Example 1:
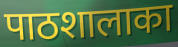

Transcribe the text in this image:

पाठशालाका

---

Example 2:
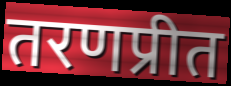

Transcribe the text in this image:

तरणप्रीत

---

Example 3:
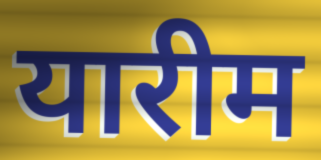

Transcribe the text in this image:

यारीम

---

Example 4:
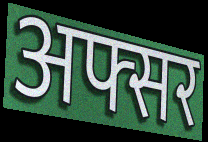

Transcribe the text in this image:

अफ्सर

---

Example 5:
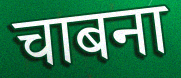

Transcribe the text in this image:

चाबना